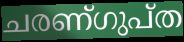
ചരണ്ഗുപ്ത